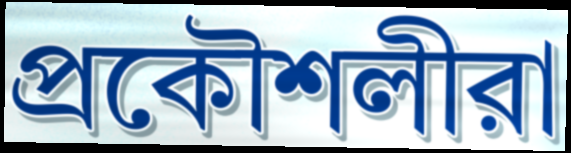
প্রকৌশলীরা